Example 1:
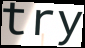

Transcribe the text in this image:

try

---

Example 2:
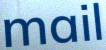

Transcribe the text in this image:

mail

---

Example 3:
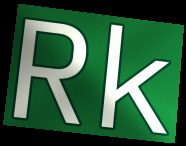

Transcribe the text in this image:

Rk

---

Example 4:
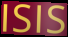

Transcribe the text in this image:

ISIS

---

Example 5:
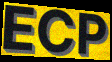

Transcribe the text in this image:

ECP